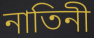
নাতিনী